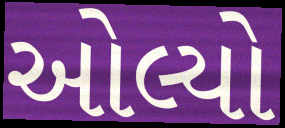
ઓલ્યો